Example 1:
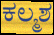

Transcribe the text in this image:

ಕಲ್ಮಶ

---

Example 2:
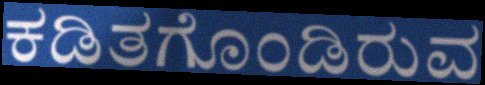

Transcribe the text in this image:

ಕಡಿತಗೊಂಡಿರುವ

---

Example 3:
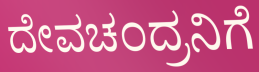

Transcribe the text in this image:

ದೇವಚಂದ್ರನಿಗೆ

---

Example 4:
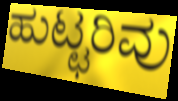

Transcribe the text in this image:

ಹುಟ್ಟರಿವು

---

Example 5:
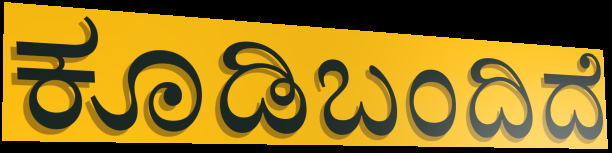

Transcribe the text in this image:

ಕೂಡಿಬಂದಿದೆ